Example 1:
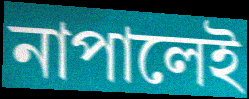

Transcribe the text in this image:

নাপালেই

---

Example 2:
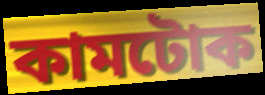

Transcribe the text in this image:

কামটোক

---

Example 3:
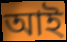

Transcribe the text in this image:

আই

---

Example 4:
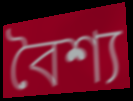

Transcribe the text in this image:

বৈশ্য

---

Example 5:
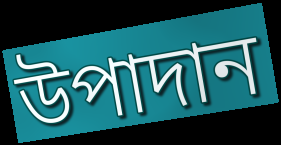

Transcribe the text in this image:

উপাদান